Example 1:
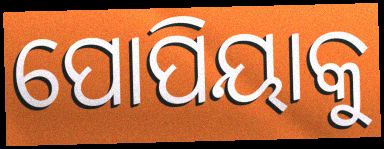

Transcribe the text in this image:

ପୋପିୟାକୁ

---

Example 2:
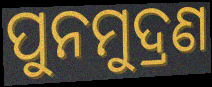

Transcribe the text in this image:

ପୁନମୁଦ୍ରଣ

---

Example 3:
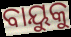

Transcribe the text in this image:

ବାୟୁକୁ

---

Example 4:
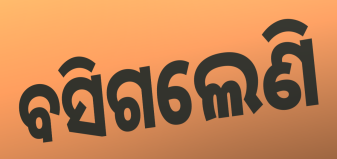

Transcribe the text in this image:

ବସିଗଲେଣି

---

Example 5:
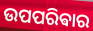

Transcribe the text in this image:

ଉପପରିଵାର